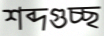
শব্দগুচ্ছ